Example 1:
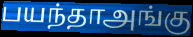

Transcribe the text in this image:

பயந்தாஅங்கு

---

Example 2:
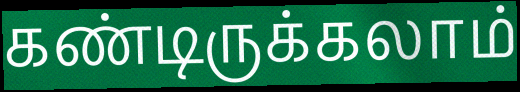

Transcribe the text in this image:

கண்டிருக்கலாம்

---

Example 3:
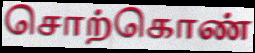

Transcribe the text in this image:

சொற்கொண்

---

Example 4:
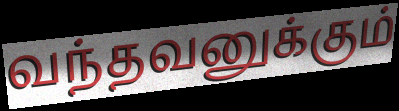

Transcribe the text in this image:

வந்தவனுக்கும்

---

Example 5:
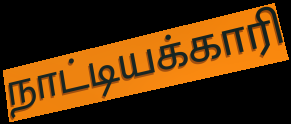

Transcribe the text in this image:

நாட்டியக்காரி